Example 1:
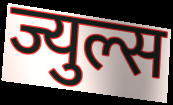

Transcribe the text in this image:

ज्युल्स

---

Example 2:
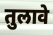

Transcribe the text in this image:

तुलावे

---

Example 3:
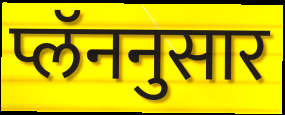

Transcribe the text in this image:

प्लॅननुसार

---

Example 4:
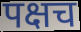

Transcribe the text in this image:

पक्षच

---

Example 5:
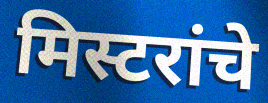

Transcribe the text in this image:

मिस्टरांचे